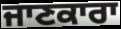
ਜਾਣਕਾਰਾ